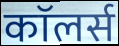
कॉलर्स